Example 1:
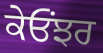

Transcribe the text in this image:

ਕੇਓਂਝਰ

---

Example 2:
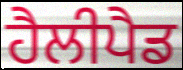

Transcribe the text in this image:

ਹੈਲੀਪੈਡ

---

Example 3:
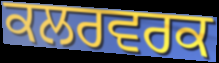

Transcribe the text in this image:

ਕਲਰਵਰਕ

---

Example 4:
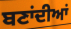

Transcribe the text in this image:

ਬਣਾਂਦੀਆਂ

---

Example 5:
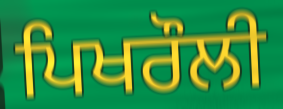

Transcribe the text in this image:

ਪਿਖਰੌਲੀ